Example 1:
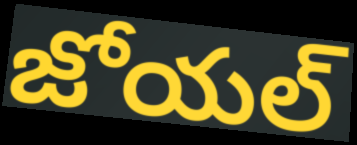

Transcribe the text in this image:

జోయల్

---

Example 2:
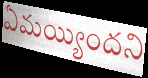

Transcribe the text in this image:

ఏమయ్యిందని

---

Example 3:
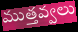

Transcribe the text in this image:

ముత్తవ్వలు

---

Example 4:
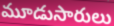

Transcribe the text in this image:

మూడుసారులు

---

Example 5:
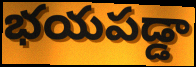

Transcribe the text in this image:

భయపడ్డా